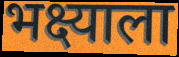
भक्ष्याला